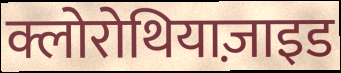
क्लोरोथियाज़ाइड